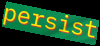
persist